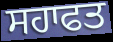
ਸਹਾਫਤ